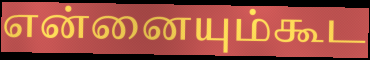
என்னையும்கூட